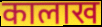
कालाख